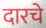
दारचे